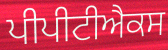
ਪੀਪੀਟੀਐਕਸ